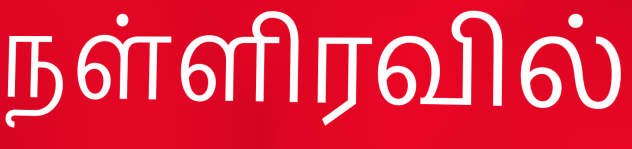
நள்ளிரவில்